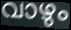
വാഴും